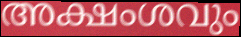
അക്ഷംശവും